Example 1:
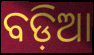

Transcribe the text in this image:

ବଡ଼ିଆ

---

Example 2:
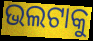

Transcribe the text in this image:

ଭଲଟାକୁ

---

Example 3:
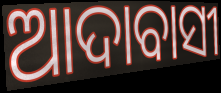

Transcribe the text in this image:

ଆଦାବାସୀ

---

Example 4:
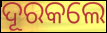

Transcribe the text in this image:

ଦୂରକଲେ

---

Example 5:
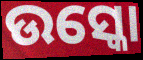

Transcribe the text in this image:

ଉସ୍କୋ